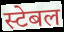
स्‍टेबल